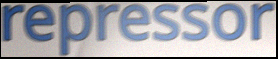
repressor